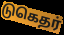
டுகெதர்